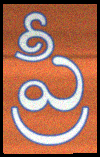
ప్రీ